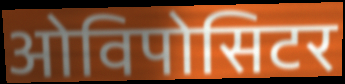
ओविपोसिटर